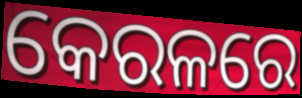
କେରଳରେ